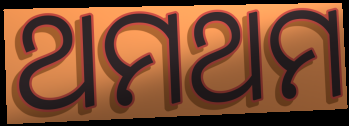
ଥମଥମ